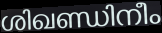
ശിഖണ്ഡിനീം